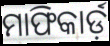
ମାଫିକାର୍ଡ଼